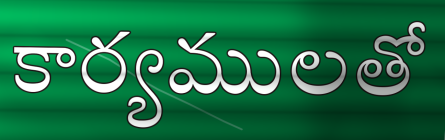
కార్యములతో